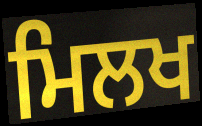
ਮਿਲਖ